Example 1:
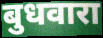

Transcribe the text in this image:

बुधवारा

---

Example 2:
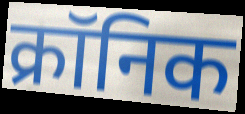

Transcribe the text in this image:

क्रॉनिक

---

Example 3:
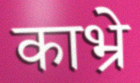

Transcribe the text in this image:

काभ्रे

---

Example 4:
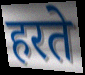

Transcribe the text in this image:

हरते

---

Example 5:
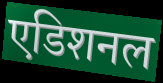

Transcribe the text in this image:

एडिशनल